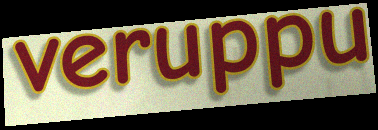
veruppu